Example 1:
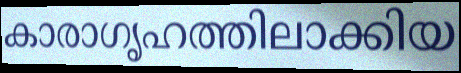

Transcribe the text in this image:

കാരാഗൃഹത്തിലാക്കിയ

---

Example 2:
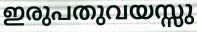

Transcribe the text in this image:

ഇരുപതുവയസ്സു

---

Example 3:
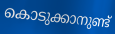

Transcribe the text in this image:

കൊടുക്കാനുണ്ട്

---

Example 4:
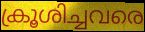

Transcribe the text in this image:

ക്രൂശിച്ചവരെ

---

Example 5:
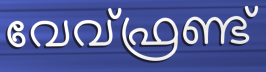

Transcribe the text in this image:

വേവ്ഫ്രണ്ട്